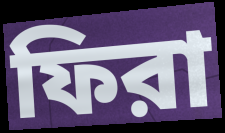
ফিরা